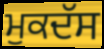
ਮੁਕਦੱਸ